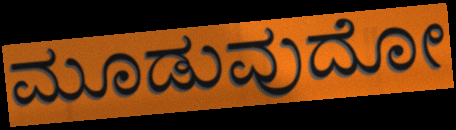
ಮೂಡುವುದೋ